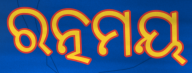
ରତ୍ନମୟ